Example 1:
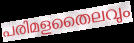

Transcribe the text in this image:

പരിമളതൈലവും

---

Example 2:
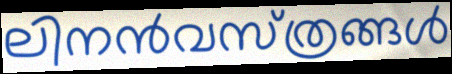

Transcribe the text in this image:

ലിനൻവസ്‌ത്രങ്ങൾ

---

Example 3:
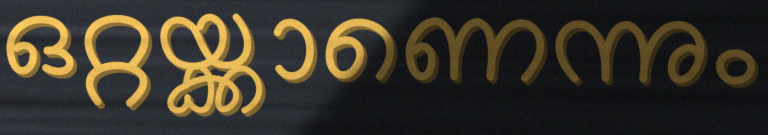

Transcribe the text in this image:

ഒറ്റയ്ക്കാണെന്നും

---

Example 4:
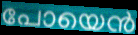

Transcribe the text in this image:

പോയെൻ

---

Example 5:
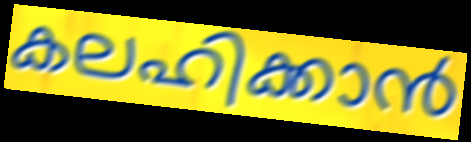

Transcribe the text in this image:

കലഹിക്കാൻ